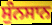
ਸੁੰਨਸਾਨ